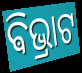
ଵିଭ୍ରାଟ